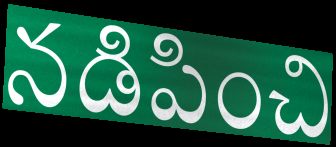
నడిపించి